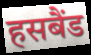
हसबैंड